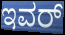
ಇವರ್